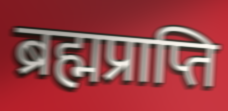
ब्रह्मप्राप्ति